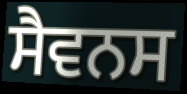
ਸੈਵਨਸ